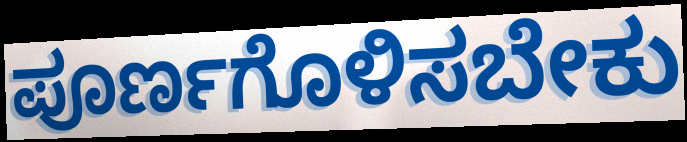
ಪೂರ್ಣಗೊಳಿಸಬೇಕು